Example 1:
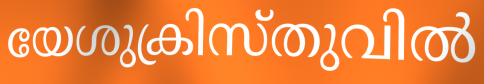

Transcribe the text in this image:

യേശുക്രിസ്തുവിൽ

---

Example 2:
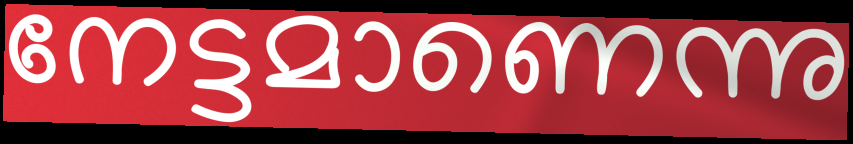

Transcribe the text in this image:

നേട്ടമാണെന്നു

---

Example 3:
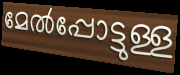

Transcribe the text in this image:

മേൽപ്പോട്ടുള്ള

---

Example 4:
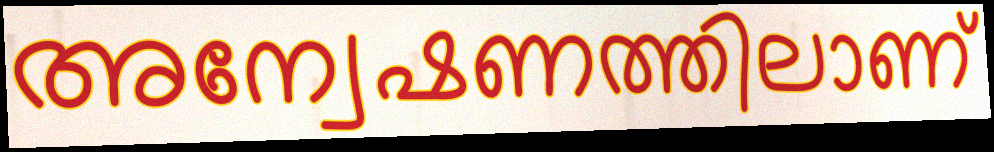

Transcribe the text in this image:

അന്വേഷണത്തിലാണ്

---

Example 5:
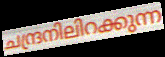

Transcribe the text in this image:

ചന്ദ്രനിലിറക്കുന്ന